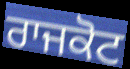
ਰਾਜਕੋਟ